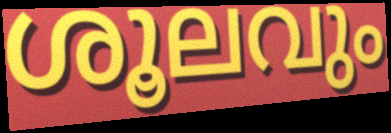
ശൂലവും